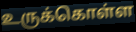
உருக்கொள்ள